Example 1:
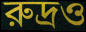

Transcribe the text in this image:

রুদ্রও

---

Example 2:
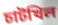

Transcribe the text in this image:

চাটখিল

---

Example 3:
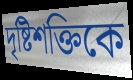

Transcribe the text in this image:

দৃষ্টিশক্তিকে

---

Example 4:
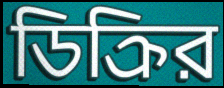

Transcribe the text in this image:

ডিক্রির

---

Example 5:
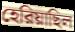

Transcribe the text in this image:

হেরিয়াছিল